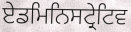
ਏਡਮਿਨਿਸਟ੍ਰੇਟਿਵ